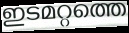
ഇടമറ്റത്തെ